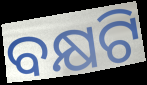
ବକ୍ଷଟି